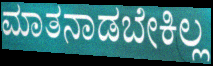
ಮಾತನಾಡಬೇಕಿಲ್ಲ